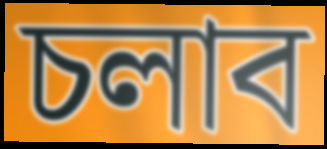
চলাব